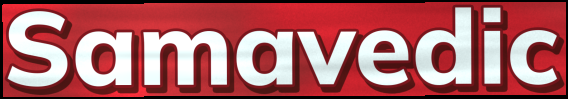
Samavedic